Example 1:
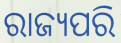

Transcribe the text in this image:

ରାଜ୍ୟପରି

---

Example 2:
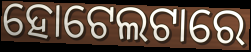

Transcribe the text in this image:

ହୋଟେଲଟାରେ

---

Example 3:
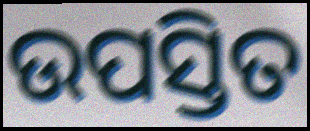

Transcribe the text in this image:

ଉପସ୍ତିତ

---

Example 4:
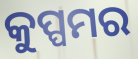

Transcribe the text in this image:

କୁପ୍ପମର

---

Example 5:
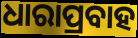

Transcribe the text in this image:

ଧାରାପ୍ରବାହ